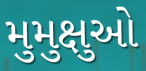
મુમુક્ષુઓ